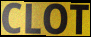
CLOT